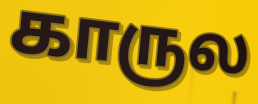
காருல